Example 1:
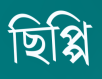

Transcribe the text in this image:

ছিপ্পি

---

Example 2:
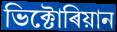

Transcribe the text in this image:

ভিক্টোৰিয়ান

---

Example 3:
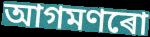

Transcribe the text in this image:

আগমণৰো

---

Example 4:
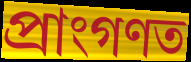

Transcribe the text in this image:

প্ৰাংগণত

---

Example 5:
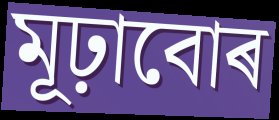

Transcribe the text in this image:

মূঢ়াবোৰ